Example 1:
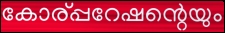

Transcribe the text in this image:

കോര്പ്പറേഷന്റെയും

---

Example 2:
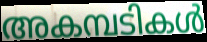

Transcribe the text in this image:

അകമ്പടികൾ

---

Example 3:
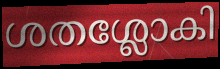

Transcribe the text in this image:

ശതശ്ലോകി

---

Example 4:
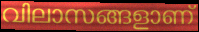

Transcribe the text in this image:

വിലാസങ്ങളാണ്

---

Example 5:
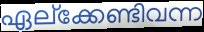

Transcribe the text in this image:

ഏല്ക്കേണ്ടിവന്ന